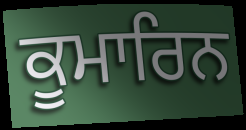
ਕੂਮਾਰਿਨ